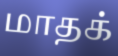
மாதக்